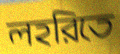
লহরিতে